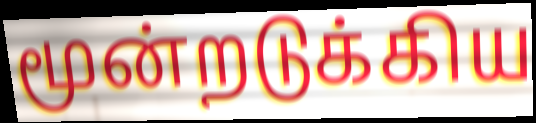
மூன்றடுக்கிய